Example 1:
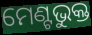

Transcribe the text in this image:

ମେଣ୍ଟଭୁକ୍ତ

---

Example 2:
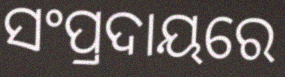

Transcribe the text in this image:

ସଂପ୍ରଦାୟରେ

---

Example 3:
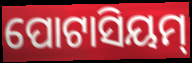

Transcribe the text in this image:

ପୋଟାସିୟମ୍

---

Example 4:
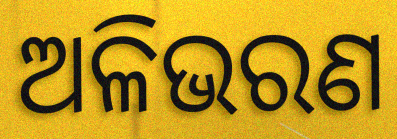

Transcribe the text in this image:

ଅଳିଭରଣ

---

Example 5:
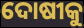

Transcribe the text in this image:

ଦୋଷୀକୁ